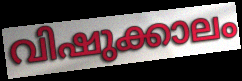
വിഷുക്കാലം